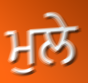
ਮੁਲੇ